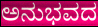
ಅನುಭವದ